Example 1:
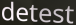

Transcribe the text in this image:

detest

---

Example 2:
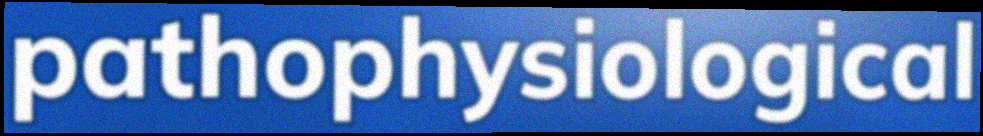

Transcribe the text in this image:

pathophysiological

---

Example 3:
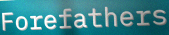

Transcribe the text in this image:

Forefathers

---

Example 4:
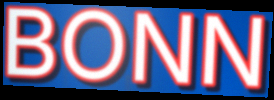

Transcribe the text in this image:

BONN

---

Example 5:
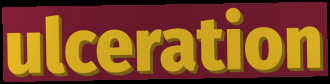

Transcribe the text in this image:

ulceration